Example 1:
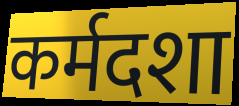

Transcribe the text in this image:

कर्मदशा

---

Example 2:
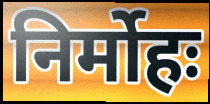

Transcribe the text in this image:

निर्मोहः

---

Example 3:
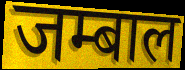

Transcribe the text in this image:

जम्बाल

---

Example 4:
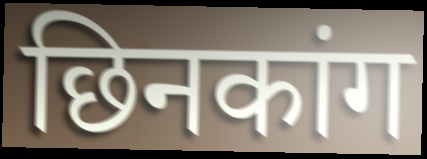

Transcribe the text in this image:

छिनकांग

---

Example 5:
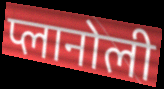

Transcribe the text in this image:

प्लानोली